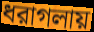
ধরাগলায়